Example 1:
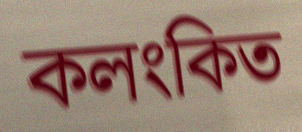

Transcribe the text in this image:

কলংকিত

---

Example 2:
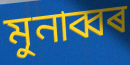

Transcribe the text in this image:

মুনাব্বৰ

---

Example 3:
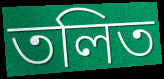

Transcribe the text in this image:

তলিত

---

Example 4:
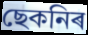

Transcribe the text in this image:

ছেকনিৰ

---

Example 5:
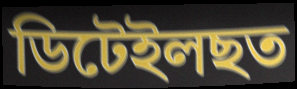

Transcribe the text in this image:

ডিটেইলছত